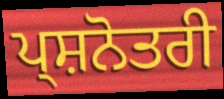
ਪ੍ਸ਼ਨੋਤਰੀ